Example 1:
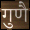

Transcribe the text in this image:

गुणै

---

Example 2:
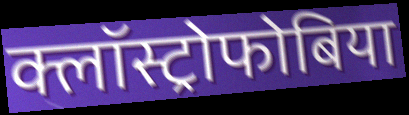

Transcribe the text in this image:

क्लॉस्ट्रोफोबिया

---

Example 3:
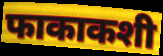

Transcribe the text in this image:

फाकाकशी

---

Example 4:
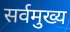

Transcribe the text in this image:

सर्वमुख्य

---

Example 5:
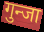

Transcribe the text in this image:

गुन्जा